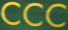
CCC